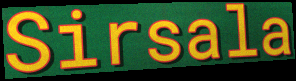
Sirsala